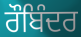
ਰੌਬਿੰਦਰ